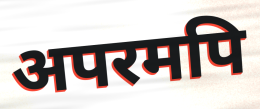
अपरमपि